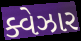
ક્વેઝાર